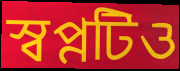
স্বপ্নটিও